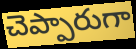
చెప్పారుగా